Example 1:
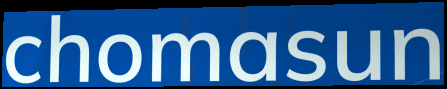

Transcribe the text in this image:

chomasun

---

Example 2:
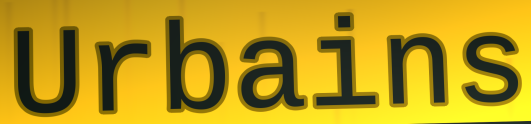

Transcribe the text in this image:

Urbains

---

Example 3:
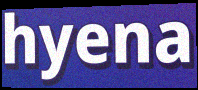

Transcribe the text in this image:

hyena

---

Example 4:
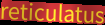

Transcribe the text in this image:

reticulatus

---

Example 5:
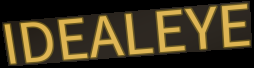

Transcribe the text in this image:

IDEALEYE